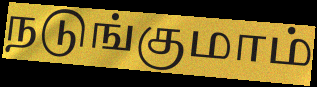
நடுங்குமாம்